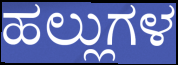
ಹಲ್ಲುಗಳ